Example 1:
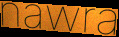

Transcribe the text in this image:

nawra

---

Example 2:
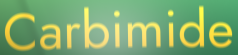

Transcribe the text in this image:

Carbimide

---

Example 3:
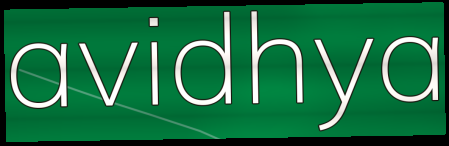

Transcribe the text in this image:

avidhya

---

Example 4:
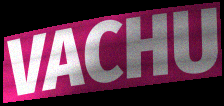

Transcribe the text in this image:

VACHU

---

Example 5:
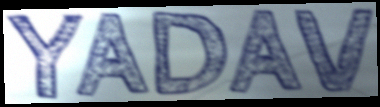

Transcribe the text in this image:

YADAV